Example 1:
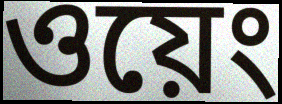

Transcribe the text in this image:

ওয়েং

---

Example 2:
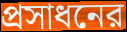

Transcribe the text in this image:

প্রসাধনের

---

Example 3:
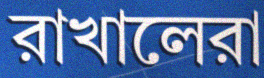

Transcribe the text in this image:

রাখালেরা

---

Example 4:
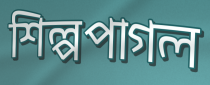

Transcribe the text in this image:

শিল্পপাগল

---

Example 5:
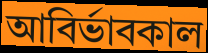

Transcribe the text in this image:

আবির্ভাবকাল